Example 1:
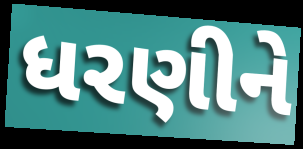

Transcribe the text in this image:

ધરણીને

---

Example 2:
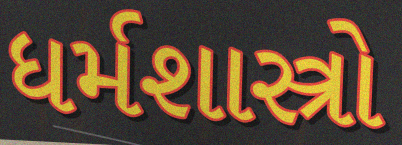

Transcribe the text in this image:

ધર્મશાસ્ત્રો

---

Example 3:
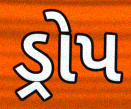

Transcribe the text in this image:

ડ્રોપ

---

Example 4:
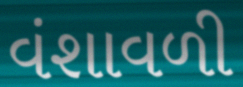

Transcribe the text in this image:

વંશાવળી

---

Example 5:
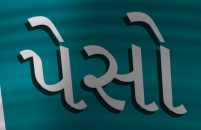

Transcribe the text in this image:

પેસો